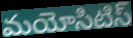
మయోసిటిస్